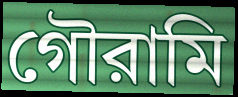
গৌরামি